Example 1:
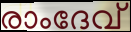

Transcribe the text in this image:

രാംദേവ്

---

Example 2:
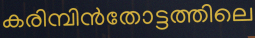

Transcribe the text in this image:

കരിമ്പിൻതോട്ടത്തിലെ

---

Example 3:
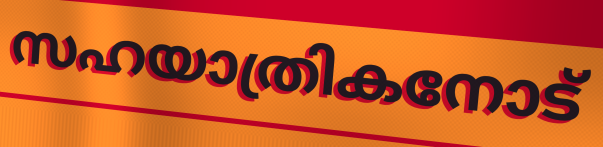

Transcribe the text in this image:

സഹയാത്രികനോട്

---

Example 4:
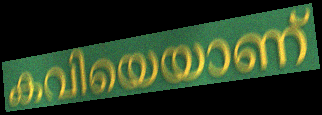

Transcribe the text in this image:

കവിയെയാണ്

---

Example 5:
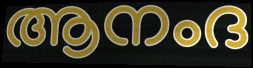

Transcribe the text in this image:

ആനംദ